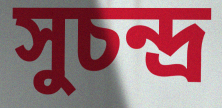
সুচন্দ্র